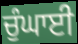
ਚੁੰਘਾਈ